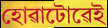
হোৱাটোৱেই